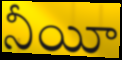
నీయీ